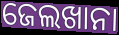
ଜେଲଖାନା